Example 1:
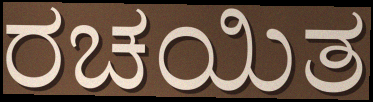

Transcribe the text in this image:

ರಚಯಿತ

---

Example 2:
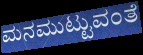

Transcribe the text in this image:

ಮನಮುಟ್ಟುವಂತೆ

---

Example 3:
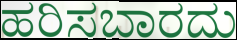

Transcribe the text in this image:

ಹರಿಸಬಾರದು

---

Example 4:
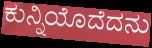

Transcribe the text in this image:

ಕುನ್ನಿಯೊದೆದನು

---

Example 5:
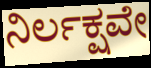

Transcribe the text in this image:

ನಿರ್ಲಕ್ಷವೇ